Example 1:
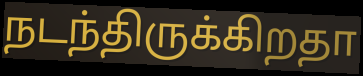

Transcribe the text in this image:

நடந்திருக்கிறதா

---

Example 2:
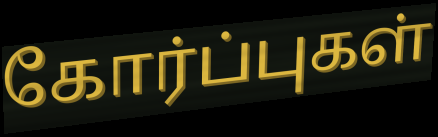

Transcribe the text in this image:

கோர்ப்புகள்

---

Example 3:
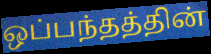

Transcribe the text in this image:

ஒப்பந்தத்தின்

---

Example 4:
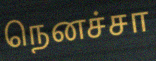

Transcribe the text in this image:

நெனச்சா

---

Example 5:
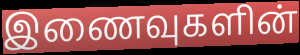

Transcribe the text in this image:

இணைவுகளின்